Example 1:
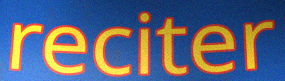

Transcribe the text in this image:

reciter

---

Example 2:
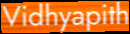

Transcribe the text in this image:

Vidhyapith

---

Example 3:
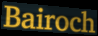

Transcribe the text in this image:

Bairoch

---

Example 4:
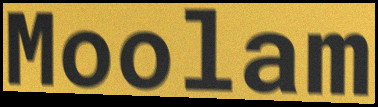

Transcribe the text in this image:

Moolam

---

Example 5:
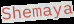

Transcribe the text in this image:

Shemaya